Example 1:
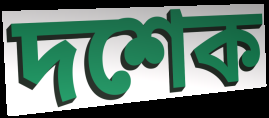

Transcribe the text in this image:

দশেক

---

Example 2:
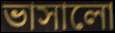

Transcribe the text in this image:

ভাসালো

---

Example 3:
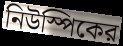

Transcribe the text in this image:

নিউস্পিকের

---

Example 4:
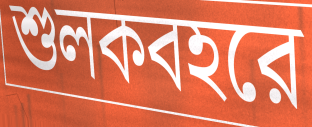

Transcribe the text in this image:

শুলকবহরে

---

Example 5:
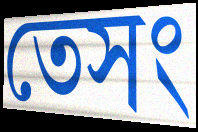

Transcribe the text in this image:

তেসং